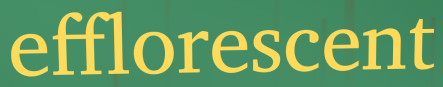
efflorescent